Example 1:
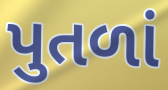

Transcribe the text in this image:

પુતળાં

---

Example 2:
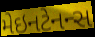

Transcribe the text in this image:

મેઇનટેનન્સ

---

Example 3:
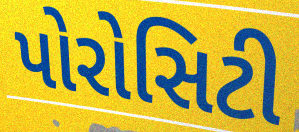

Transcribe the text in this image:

પોરોસિટી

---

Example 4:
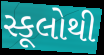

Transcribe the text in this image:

સ્કૂલોથી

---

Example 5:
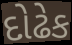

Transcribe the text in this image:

દોઢેક